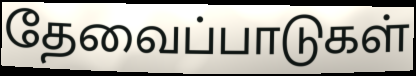
தேவைப்பாடுகள்